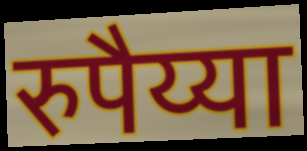
रुपैय्या